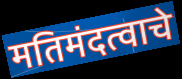
मतिमंदत्वाचे